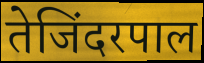
तेजिंदरपाल